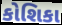
કોશિકા